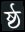
ষ্ঠ